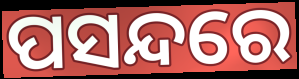
ପସନ୍ଦରେ